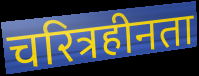
चरित्रहीनता